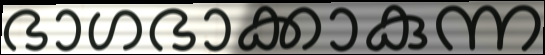
ഭാഗഭാക്കാകുന്ന